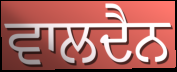
ਵਾਲਦੈਨ